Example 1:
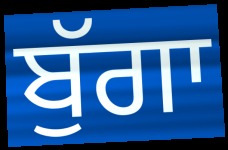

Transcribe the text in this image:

ਬੁੱਗਾ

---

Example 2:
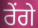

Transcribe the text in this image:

ਰੇਂਗੇ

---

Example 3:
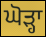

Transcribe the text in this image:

ਘੋੜ੍ਹਾ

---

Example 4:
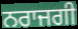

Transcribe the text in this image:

ਨਰਾਜਗੀ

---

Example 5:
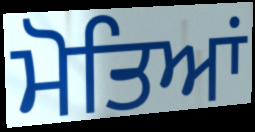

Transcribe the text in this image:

ਮੋਤਿਆਂ